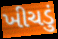
ખીચડું